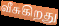
வீசுகிறது